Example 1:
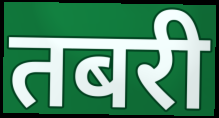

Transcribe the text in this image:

तबरी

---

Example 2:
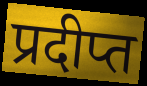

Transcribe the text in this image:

प्रदीप्त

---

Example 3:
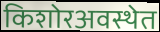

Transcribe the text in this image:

किशोरअवस्थेत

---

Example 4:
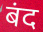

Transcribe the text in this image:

बंद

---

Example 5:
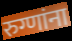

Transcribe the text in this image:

रुग्णांना